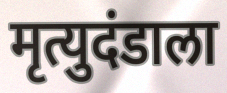
मृत्युदंडाला